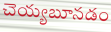
చెయ్యబూనడం